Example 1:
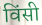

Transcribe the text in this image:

विंसी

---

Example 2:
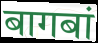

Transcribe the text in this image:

बागबां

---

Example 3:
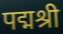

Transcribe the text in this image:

पद्मश्री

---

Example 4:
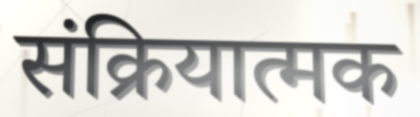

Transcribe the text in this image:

संक्रियात्मक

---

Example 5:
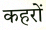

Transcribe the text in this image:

कहरों